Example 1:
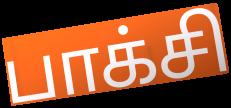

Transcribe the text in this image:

பாக்சி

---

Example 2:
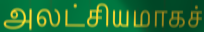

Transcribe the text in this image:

அலட்சியமாகச்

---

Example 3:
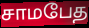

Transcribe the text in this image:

சாமபேத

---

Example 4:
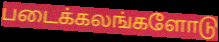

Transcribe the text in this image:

படைக்கலங்களோடு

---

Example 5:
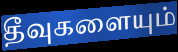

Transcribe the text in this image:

தீவுகளையும்